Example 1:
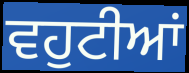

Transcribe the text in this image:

ਵਹੁਟੀਆਂ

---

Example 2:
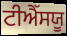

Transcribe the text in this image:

ਟੀਐੱਸਯੂ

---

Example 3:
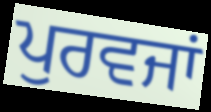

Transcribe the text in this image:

ਪੁਰਵਜਾਂ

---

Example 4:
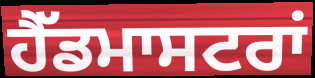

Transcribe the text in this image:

ਹੈੱਡਮਾਸਟਰਾਂ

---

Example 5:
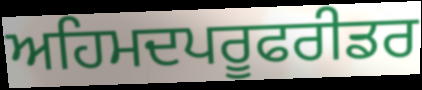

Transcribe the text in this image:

ਅਹਿਮਦਪਰੂਫਰੀਡਰ